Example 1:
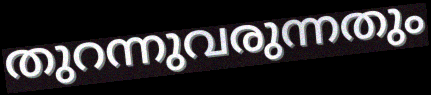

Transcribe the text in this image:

തുറന്നുവരുന്നതും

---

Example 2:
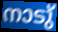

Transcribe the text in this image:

നാടു്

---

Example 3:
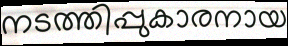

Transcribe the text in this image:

നടത്തിപ്പുകാരനായ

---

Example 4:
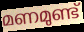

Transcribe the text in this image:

മണമുണ്ട്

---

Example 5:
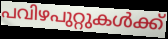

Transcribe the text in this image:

പവിഴപുറ്റുകൾക്ക്